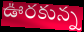
ఊరకున్న